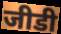
जीडी